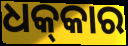
ଧକ୍‍କାର